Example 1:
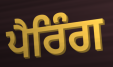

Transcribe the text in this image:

ਪੈਰਿੰਗ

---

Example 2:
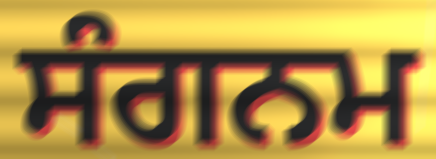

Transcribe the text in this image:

ਸੰਗਨਮ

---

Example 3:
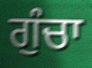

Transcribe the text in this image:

ਗੁੰਚਾ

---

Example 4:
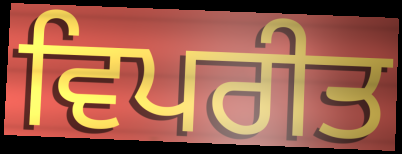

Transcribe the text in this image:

ਵਿਪਰੀਤ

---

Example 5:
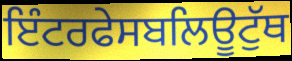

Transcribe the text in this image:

ਇੰਟਰਫੇਸਬਲਿਊਟੁੱਥ